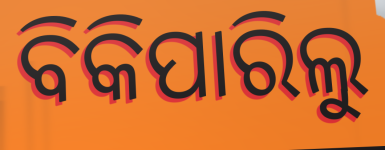
ବିକିପାରିଲୁ